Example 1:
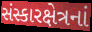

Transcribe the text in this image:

સંસ્કારક્ષેત્રનાં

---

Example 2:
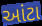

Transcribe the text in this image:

આંટા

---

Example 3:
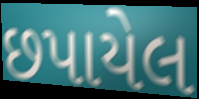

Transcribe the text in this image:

છપાયેલ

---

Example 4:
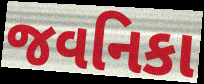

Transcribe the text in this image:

જવનિકા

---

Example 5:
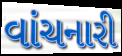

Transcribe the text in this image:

વાંચનારી